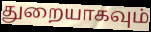
துறையாகவும்